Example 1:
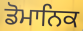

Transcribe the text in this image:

ਡੋਮਾਨਿਕ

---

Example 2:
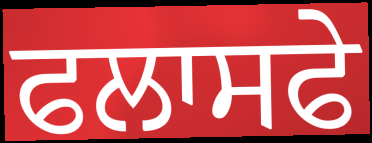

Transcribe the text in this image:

ਫਲਾਸਫੇ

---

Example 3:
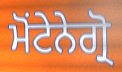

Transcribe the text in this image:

ਮੋਂਟੇਨੇਗ੍ਰੋ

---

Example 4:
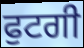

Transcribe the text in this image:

ਫੁਟਗੀ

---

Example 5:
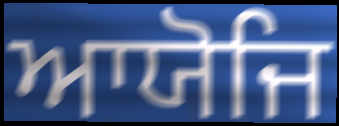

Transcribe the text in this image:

ਆਯੋਜਿ